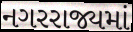
નગરરાજ્યમાં